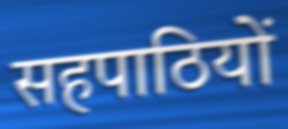
सहपाठियों